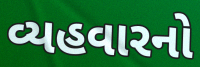
વ્યહવારનો